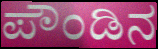
ಪೌಂಡಿನ